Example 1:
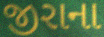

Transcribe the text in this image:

જીરાના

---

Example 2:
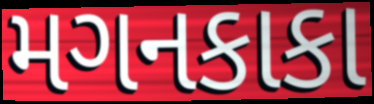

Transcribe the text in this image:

મગનકાકા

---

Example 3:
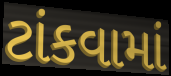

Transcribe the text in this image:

ટાંકવામાં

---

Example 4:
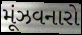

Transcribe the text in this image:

મૂંઝવનારો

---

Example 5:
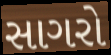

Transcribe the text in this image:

સાગરો